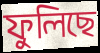
ফুলিছে